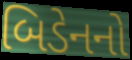
બિડેનનો